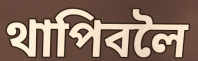
থাপিবলৈ